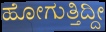
ಹೋಗುತ್ತಿದ್ದೀ